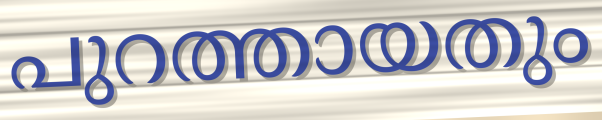
പുറത്തായതും